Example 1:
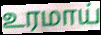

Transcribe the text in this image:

உரமாய்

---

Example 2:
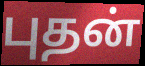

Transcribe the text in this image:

புதன்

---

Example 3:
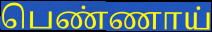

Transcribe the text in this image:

பெண்ணாய்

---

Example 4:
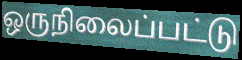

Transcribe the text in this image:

ஒருநிலைப்பட்டு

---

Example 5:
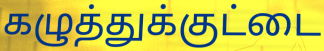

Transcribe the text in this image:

கழுத்துக்குட்டை